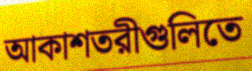
আকাশতরীগুলিতে